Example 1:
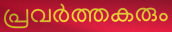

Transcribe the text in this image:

പ്രവർത്തകരും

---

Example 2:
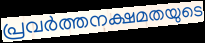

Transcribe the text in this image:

പ്രവർത്തനക്ഷമതയുടെ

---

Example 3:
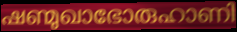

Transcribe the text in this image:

ഷണ്മുഖാഭോരുഹാണി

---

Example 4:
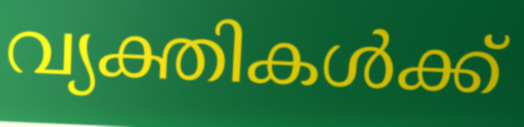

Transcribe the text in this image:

വ്യക്തികൾക്ക്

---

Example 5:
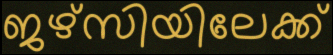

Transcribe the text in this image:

ജഴ്സിയിലേക്ക്